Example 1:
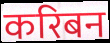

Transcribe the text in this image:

करिबन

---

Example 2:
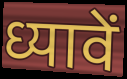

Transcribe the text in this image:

ध्यावें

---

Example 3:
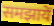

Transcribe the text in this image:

समझायें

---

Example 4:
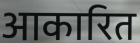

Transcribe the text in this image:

आकारित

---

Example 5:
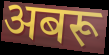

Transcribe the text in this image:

अबरू